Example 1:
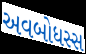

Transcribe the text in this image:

અવબોધસ્સ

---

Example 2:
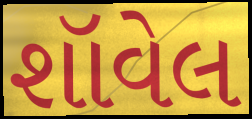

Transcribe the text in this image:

શૉવેલ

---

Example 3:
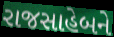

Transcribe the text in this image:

રાજસાહેબને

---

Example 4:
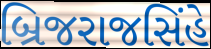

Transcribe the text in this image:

બ્રિજરાજસિંહે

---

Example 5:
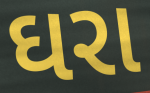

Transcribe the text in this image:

ઘરા